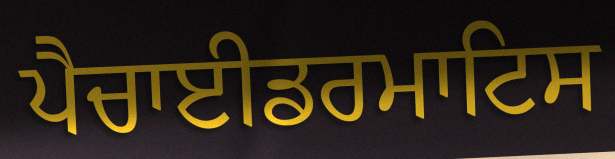
ਪੈਚਾਈਡਰਮਾਟਿਸ